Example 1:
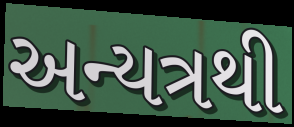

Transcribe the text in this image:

અન્યત્રથી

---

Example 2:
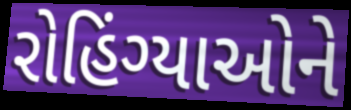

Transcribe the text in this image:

રોહિંગ્યાઓને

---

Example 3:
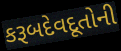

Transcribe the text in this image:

કરૂબદેવદૂતોની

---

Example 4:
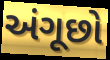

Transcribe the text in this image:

અંગૂછો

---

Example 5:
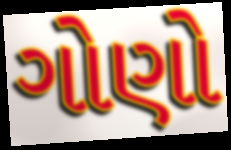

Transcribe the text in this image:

ગોણો